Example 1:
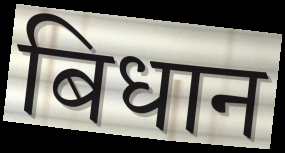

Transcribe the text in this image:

बिधान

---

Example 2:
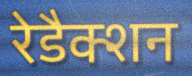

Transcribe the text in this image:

रेडैक्शन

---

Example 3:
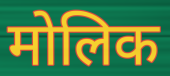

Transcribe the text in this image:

मोलिक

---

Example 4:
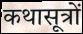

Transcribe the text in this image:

कथासूत्रों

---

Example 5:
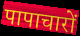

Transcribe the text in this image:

पापाचारों